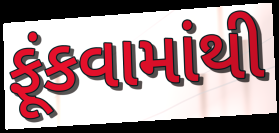
ફૂંકવામાંથી